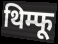
थिम्फू